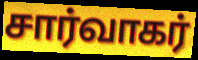
சார்வாகர்